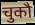
चुकौ